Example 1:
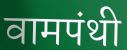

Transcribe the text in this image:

वामपंथी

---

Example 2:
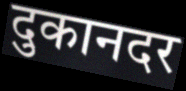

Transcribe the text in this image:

दुकानदर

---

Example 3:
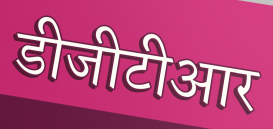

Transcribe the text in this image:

डीजीटीआर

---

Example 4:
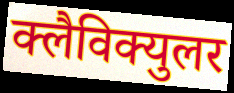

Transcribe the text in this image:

क्लैविक्युलर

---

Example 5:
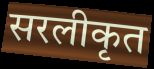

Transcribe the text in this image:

सरलीकृत